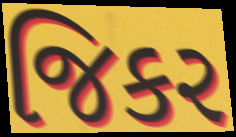
જિકર